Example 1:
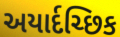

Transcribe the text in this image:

અયાર્દચ્છિક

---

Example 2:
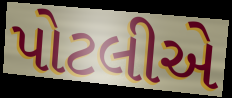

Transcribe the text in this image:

પોટલીએ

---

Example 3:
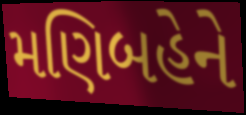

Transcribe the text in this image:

મણિબહેને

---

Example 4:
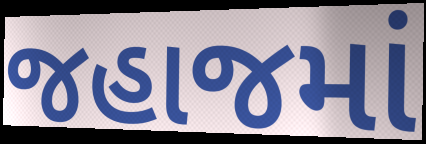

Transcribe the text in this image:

જહાજમાં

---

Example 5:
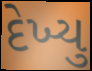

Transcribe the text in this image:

દેખ્યુ